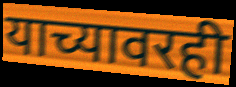
याच्यावरही